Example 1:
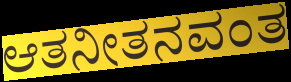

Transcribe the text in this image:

ಆತನೀತನವಂತ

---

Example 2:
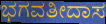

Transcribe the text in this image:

ಭಗವತೀದಾಸ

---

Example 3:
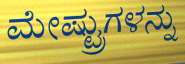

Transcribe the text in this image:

ಮೇಷ್ಟ್ರುಗಳನ್ನು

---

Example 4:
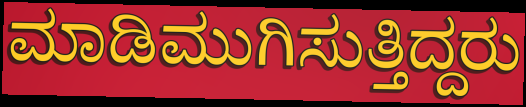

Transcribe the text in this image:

ಮಾಡಿಮುಗಿಸುತ್ತಿದ್ದರು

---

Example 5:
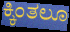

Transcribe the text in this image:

ಕ್ಕಿಂತಲೂ